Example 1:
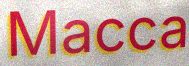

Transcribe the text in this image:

Macca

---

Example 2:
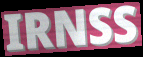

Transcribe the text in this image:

IRNSS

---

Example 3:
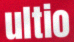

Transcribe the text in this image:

ultio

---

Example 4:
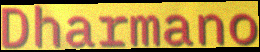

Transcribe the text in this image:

Dharmano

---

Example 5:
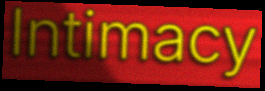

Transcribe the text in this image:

Intimacy